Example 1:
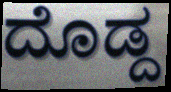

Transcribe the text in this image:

ದೊಡ್ದ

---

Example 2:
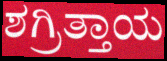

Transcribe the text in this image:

ಶಗ್ರಿತ್ತಾಯ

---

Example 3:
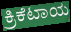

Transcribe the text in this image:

ಕ್ರಿಕೆಟಾಯ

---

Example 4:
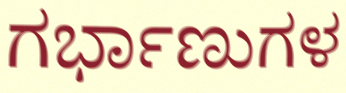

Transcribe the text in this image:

ಗರ್ಭಾಣುಗಳ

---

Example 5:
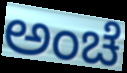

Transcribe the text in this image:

ಅಂಚೆ